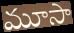
మూసా